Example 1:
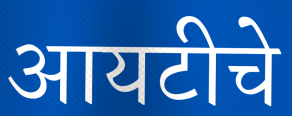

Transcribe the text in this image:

आयटीचे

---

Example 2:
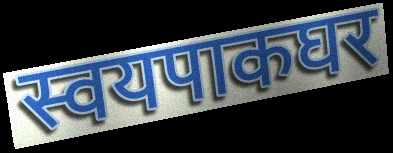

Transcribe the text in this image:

स्वयपाकघर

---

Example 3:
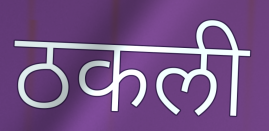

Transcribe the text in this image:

ठकली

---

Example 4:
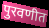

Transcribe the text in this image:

पुरवणीत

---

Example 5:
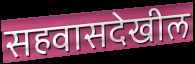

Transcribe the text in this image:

सहवासदेखील